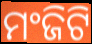
ମଂଜିଟି